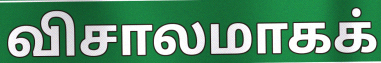
விசாலமாகக்